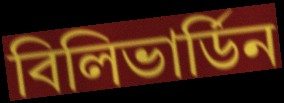
বিলিভার্ডিন